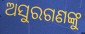
ଅସୁରଗଣଙ୍କୁ